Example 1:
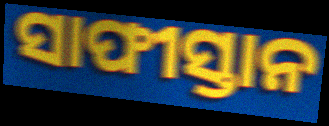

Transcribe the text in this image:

ସାଫୀସ୍ତାନ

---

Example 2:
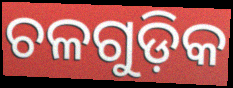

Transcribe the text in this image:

ଚଳଗୁଡ଼ିକ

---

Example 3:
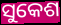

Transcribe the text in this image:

ସୁକେଶ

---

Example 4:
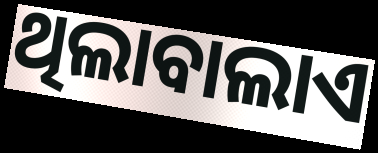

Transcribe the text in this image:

ଥିଲାବାଲାଏ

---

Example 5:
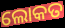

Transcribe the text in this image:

ଲୋକତ